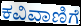
ಕವಿವಾಣಿಗೆ